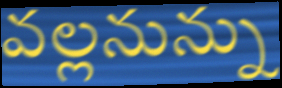
వల్లనున్ను